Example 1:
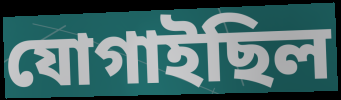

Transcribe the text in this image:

যোগাইছিল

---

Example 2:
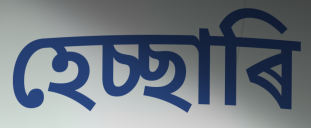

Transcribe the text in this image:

হেচ্ছাৰি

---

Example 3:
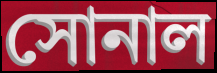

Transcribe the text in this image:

সোনাল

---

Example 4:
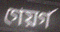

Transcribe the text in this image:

গেয়ৰ্গ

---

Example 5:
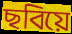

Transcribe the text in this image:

ছবিয়ে